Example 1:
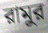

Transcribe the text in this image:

রামুর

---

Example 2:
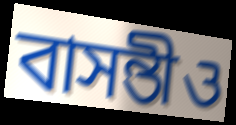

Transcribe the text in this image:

বাসন্তীও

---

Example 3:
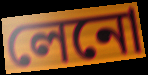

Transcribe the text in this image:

লেনো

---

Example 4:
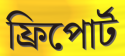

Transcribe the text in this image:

ফ্রিপোর্ট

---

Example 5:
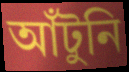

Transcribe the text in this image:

আঁটুনি